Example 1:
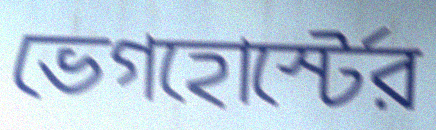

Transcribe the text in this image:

ভেগহোর্স্টের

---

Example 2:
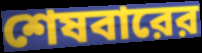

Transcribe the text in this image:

শেষবারের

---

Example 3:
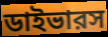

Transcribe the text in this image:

ডাইভারস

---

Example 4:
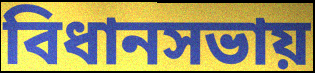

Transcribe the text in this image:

বিধানসভায়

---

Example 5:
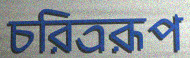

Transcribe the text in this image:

চরিত্ররূপ